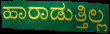
ಹಾರಾಡುತ್ತಿಲ್ಲ